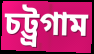
চট্ট্রগাম